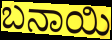
ಬನಾಯಿ